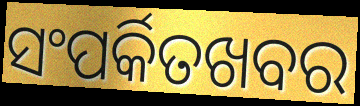
ସଂପର୍କିତଖବର